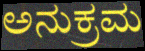
ಅನುಕ್ರಮ